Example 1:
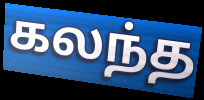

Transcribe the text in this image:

கலந்த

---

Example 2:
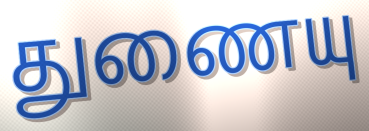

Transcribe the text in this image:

துணையு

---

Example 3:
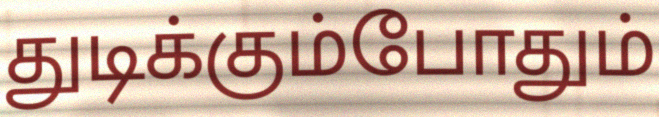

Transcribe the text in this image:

துடிக்கும்போதும்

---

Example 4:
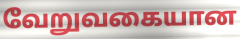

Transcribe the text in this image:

வேறுவகையான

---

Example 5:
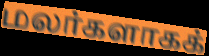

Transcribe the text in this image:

மலர்களாகக்